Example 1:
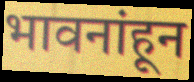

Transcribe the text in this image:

भावनांहून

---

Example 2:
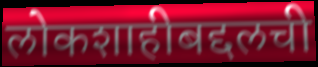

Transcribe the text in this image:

लोकशाहीबद्दलची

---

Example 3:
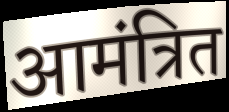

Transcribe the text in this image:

आमंत्रित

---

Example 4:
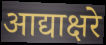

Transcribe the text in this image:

आद्याक्षरे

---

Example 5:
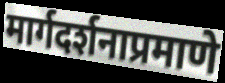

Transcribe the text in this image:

मार्गदर्शनाप्रमाणे